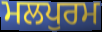
ਮਲਪੁਰਮ